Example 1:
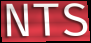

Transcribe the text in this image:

NTS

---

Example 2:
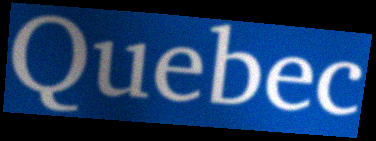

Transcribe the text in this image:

Quebec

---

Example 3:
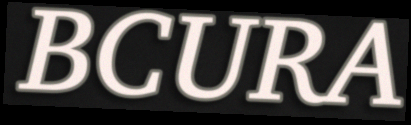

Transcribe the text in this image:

BCURA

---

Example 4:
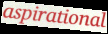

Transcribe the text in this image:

aspirational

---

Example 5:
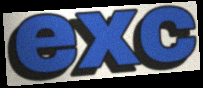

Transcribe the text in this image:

exc